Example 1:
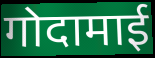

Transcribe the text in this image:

गोदामाई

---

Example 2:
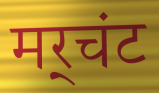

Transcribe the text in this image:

मर्चंट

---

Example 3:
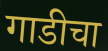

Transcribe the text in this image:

गाडीचा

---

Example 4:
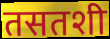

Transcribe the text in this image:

तसतशी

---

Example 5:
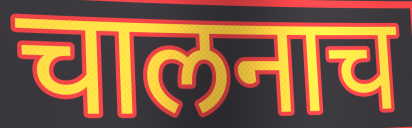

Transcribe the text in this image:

चालनाच